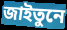
জাইতুনে